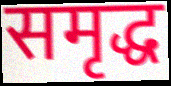
समृद्ध